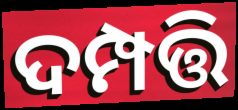
ଦମ୍ପତ୍ତି